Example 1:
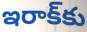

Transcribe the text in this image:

ఇరాక్‌కు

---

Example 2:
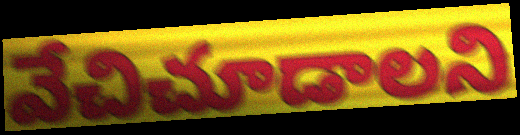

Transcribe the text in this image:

వేచిచూడాలని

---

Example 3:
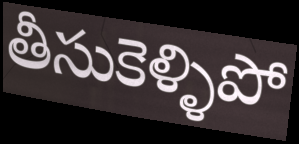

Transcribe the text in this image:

తీసుకెళ్ళిపో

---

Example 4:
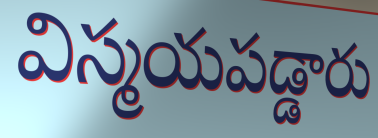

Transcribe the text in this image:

విస్మయపడ్డారు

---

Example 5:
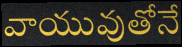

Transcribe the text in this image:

వాయువుతోనే